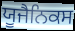
ਯੂਜੈਨਿਕਸ